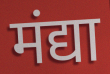
मंद्या